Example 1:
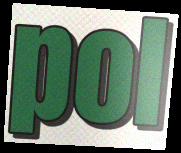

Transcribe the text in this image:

pol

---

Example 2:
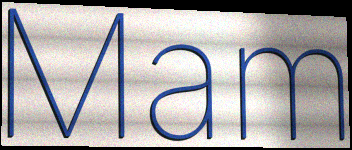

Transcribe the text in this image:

Mam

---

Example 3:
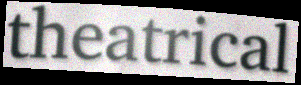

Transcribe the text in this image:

theatrical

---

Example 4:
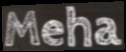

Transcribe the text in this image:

Meha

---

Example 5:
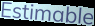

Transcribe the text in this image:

Estimable